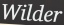
Wilder